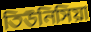
তিউনিসিয়া